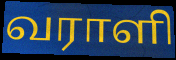
வராளி